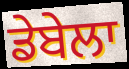
ਡੇਬੇਲਾ